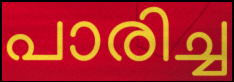
പാരിച്ച